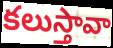
కలుస్తావా